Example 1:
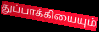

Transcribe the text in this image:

துப்பாக்கியையும்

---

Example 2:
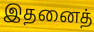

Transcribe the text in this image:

இதனைத்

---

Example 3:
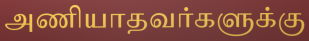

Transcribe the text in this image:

அணியாதவர்களுக்கு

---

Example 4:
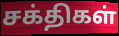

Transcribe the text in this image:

சக்திகள்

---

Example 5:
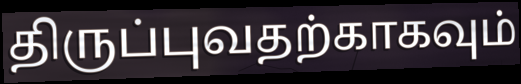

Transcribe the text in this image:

திருப்புவதற்காகவும்